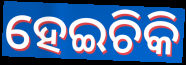
ହେଇଚିକି